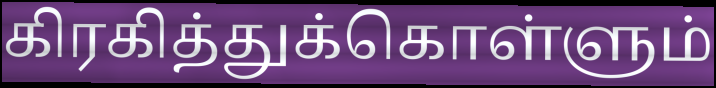
கிரகித்துக்கொள்ளும்